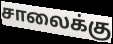
சாலைக்கு